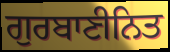
ਗੁਰਬਾਣੀਨਿਤ